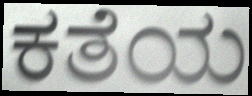
ಕತೆಯ